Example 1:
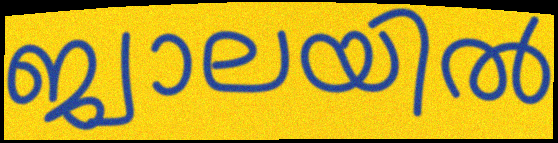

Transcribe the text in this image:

ജ്വാലയിൽ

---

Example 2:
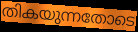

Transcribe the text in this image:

തികയുന്നതോടെ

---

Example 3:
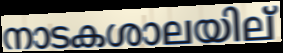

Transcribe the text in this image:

നാടകശാലയില്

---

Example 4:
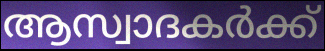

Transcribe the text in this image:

ആസ്വാദകർക്ക്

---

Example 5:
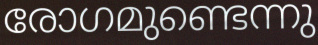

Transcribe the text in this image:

രോഗമുണ്ടെന്നു